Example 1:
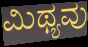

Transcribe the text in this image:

ಮಿಥ್ಯವು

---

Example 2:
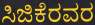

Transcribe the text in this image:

ಸಿಜಿಕೆರವರ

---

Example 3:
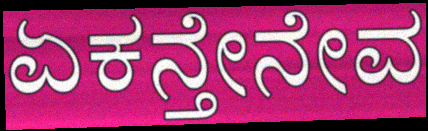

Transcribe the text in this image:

ಏಕನ್ತೇನೇವ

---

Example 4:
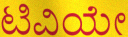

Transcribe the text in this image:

ಟಿವಿಯೇ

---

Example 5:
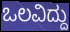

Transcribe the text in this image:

ಒಲವಿದ್ದು